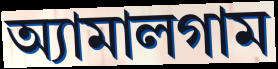
অ্যামালগাম